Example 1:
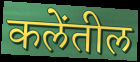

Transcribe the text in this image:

कलेंतील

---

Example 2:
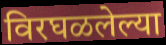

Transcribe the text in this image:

विरघळलेल्या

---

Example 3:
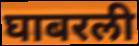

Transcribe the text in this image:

घाबरली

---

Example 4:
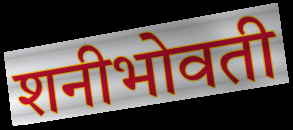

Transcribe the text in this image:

शनीभोवती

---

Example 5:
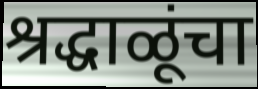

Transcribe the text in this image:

श्रद्धाळूंचा